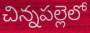
చిన్నపల్లెలో